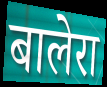
बालेरा